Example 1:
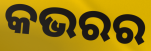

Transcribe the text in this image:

କଭରର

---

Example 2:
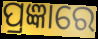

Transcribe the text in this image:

ପ୍ରଜ୍ଞାରେ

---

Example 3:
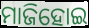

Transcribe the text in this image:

ମାଜିହୋଇ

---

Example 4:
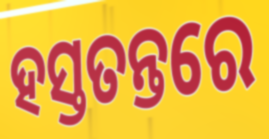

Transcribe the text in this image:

ହସ୍ତତନ୍ତରେ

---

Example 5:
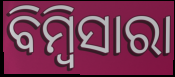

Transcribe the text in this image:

ବିମ୍ବିସାରା